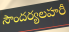
సౌందర్యలహరీ